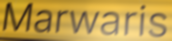
Marwaris